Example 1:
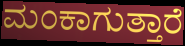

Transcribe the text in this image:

ಮಂಕಾಗುತ್ತಾರೆ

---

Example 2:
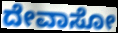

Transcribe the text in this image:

ದೇವಾಸೋ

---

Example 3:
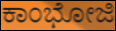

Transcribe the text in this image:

ಕಾಂಭೋಜಿ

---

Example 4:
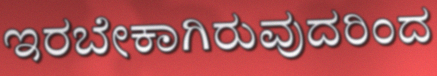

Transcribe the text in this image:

ಇರಬೇಕಾಗಿರುವುದರಿಂದ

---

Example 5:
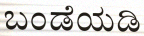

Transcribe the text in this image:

ಬಂಡೆಯಡಿ